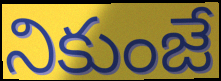
నికుంజే